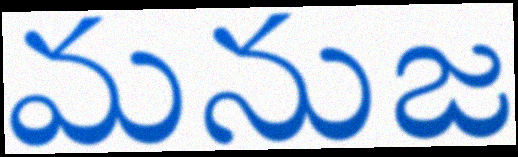
మనుజ